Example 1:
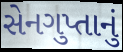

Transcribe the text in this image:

સેનગુપ્‍તાનું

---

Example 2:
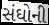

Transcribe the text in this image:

સંઘોની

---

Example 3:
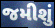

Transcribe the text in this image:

જમીશું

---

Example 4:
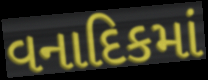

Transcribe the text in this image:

વનાદિકમાં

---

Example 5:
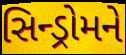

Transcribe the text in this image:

સિન્ડ્રોમને